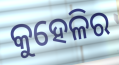
କୁହେଳିର